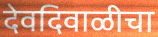
देवदिवाळीचा